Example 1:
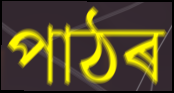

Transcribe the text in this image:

পাঠৰ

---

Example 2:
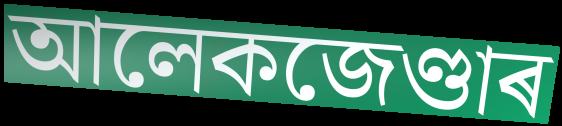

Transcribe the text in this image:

আলেকজেণ্ডাৰ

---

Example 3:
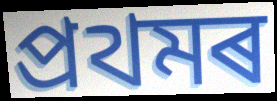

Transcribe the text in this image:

প্ৰথমৰ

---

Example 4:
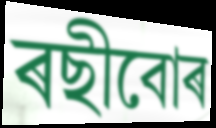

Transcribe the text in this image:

ৰছীবোৰ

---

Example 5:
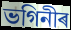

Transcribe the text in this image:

ভগিনীৰ